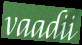
vaadii